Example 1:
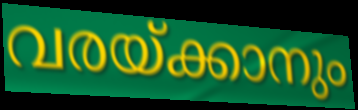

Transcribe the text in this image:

വരയ്ക്കാനും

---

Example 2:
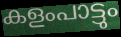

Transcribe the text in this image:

കളംപാട്ടും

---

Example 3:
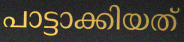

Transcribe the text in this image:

പാട്ടാക്കിയത്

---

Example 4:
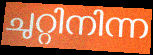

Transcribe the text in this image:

ചുറ്റിനിന്ന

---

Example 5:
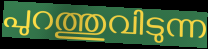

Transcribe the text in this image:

പുറത്തുവിടുന്ന